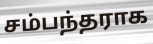
சம்பந்தராக